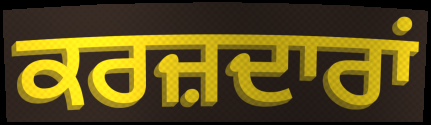
ਕਰਜ਼ਦਾਰਾਂ